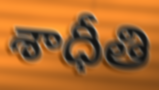
శాధీతి